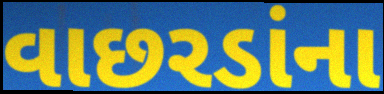
વાછરડાંના